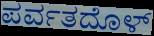
ಪರ್ವತದೊಳ್